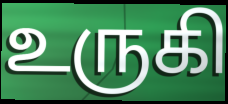
உருகி